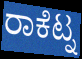
ರಾಕೆಟ್ನ